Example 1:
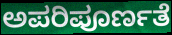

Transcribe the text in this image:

ಅಪರಿಪೂರ್ಣತೆ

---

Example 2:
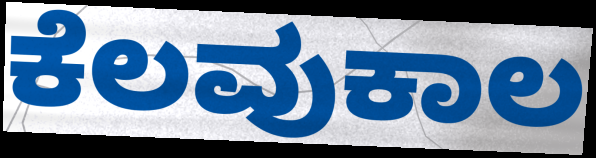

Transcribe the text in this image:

ಕೆಲವುಕಾಲ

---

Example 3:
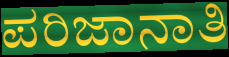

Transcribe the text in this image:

ಪರಿಜಾನಾತಿ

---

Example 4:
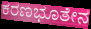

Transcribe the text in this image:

ಕರಣಭೂತೇನ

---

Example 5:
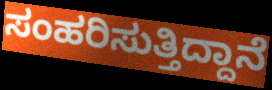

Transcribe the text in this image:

ಸಂಹರಿಸುತ್ತಿದ್ದಾನೆ